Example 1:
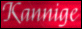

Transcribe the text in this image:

Kannige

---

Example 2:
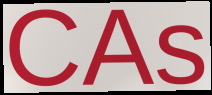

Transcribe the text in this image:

CAs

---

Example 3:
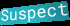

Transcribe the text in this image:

Suspect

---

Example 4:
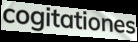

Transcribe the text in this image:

cogitationes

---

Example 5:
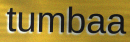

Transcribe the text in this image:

tumbaa